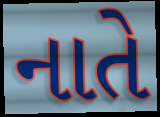
નાતે